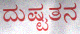
ದುಷ್ಟತನ